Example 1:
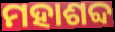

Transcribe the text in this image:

ମହାଶବ୍ଦ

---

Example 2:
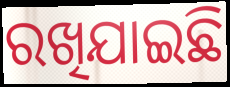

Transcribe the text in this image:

ରଖିଯାଇଛି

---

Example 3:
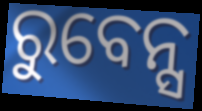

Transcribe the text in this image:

ରୁବେନ୍ସ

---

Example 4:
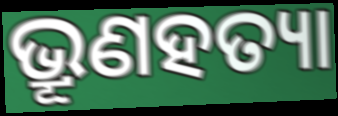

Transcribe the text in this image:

ଭ୍ରୂଣହତ୍ୟା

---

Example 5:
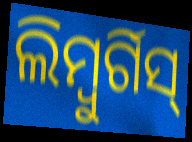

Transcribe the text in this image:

ଲିମ୍ବୁର୍ଗିସ୍